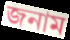
জনাম